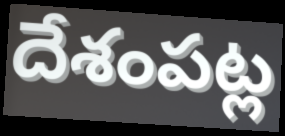
దేశంపట్ల